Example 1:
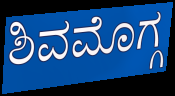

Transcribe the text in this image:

ಶಿವಮೊಗ್ಗ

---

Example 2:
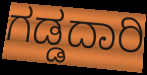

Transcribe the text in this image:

ಗಡ್ಡದಾರಿ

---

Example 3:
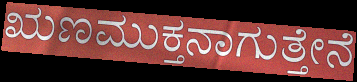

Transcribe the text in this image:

ಋಣಮುಕ್ತನಾಗುತ್ತೇನೆ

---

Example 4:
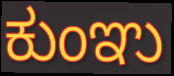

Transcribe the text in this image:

ಕುಂಞು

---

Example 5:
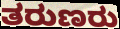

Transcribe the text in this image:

ತರುಣರು